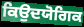
ਕਿਉਦਯੋਗਿਕ